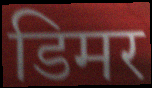
डिमर